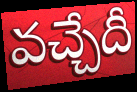
వచ్చేదీ